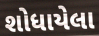
શોધાયેલા